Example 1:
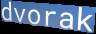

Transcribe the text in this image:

dvorak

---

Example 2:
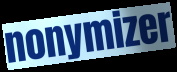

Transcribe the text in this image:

nonymizer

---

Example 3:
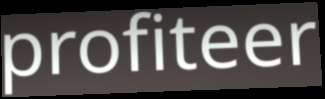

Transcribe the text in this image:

profiteer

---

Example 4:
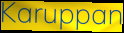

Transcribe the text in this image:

Karuppan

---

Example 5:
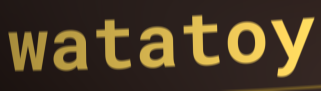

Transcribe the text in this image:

watatoy